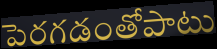
పెరగడంతోపాటు